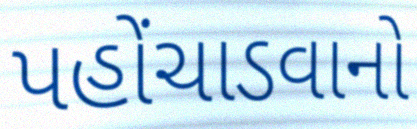
પહોંચાડવાનો